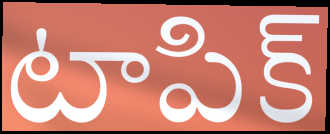
టాపిక్